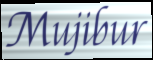
Mujibur